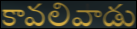
కావలివాడు